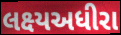
લક્ષ્યઅધીરા